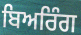
ਬਿਅਰਿੰਗ